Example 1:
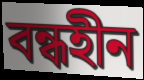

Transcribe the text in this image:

বন্ধহীন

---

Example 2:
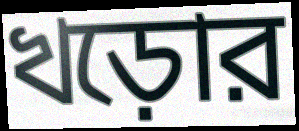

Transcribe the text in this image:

খড়োর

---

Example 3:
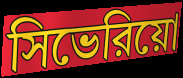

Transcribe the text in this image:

সিভেরিয়ো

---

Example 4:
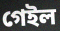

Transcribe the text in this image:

গেইল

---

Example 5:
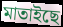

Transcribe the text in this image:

মাতাইছে